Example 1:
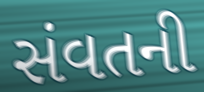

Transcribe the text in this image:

સંવતની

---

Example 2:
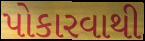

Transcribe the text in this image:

પોકારવાથી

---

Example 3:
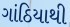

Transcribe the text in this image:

ગાંઠિયાથી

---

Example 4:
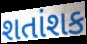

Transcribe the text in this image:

શતાંશક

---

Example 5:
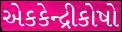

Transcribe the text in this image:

એકકેન્દ્રીકોષો